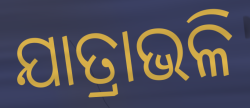
ଯାତ୍ରାଭଳି